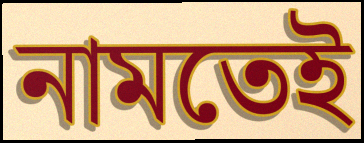
নামতেই